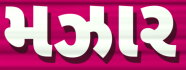
મઝાર